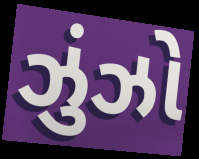
ઝુંઝો